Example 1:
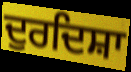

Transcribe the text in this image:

ਦੁਰਦਿਸ਼ਾ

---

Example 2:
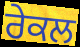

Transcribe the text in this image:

ਰੇਕਲ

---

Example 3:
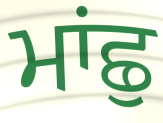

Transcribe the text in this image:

ਮਾਂਛੁ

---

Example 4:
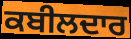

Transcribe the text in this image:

ਕਬੀਲਦਾਰ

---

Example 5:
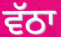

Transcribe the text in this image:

ਵੱਠਾ